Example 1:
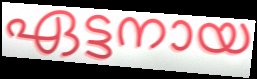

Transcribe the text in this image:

ഏട്ടനായ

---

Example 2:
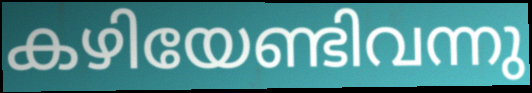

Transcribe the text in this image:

കഴിയേണ്ടിവന്നു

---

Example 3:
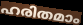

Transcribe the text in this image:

ഹരിതമാം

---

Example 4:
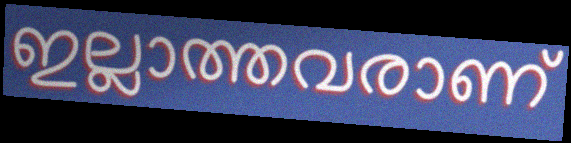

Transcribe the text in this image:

ഇല്ലാത്തവരാണ്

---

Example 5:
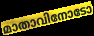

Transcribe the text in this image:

മാതാവിനോടോ